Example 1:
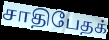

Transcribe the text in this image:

சாதிபேதக்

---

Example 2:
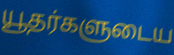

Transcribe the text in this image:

யூதர்களுடைய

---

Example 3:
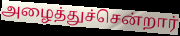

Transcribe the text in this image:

அழைத்துச்சென்றார்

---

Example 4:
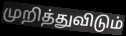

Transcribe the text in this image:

முறித்துவிடும்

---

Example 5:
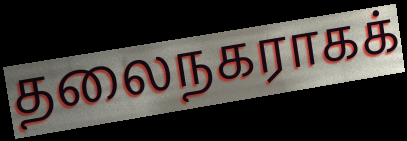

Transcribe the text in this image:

தலைநகராகக்